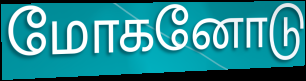
மோகனோடு